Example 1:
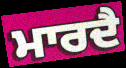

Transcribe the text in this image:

ਮਾਰਦੈ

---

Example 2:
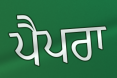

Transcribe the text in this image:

ਪੈਪਰਾ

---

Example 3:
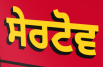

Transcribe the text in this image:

ਸੇਰਟੋਵ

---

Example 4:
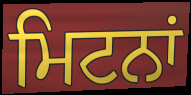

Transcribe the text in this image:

ਮਿਟਨਾਂ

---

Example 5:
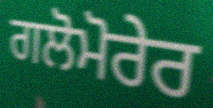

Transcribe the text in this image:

ਗਲੋਮੋਰੇਰ